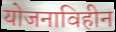
योजनाविहीन